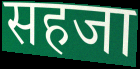
सहजा